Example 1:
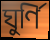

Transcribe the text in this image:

ঘুর্ণি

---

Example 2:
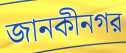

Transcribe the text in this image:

জানকীনগর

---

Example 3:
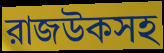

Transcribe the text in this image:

রাজউকসহ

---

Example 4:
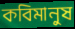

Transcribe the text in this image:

কবিমানুষ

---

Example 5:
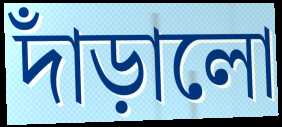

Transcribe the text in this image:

দাঁড়ালো